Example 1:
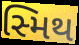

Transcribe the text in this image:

સ્મિથ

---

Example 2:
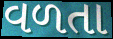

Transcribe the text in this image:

વળતા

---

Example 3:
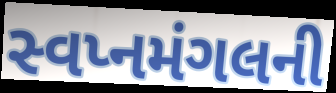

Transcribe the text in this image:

સ્વપ્નમંગલની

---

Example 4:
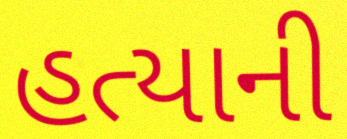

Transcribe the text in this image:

હત્યાની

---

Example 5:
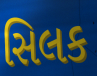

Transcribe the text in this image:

સિલક